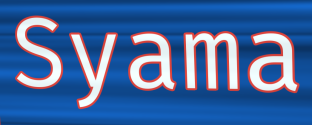
Syama